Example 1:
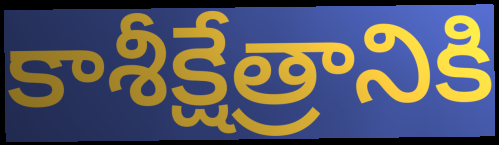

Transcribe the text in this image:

కాశీక్షేత్రానికి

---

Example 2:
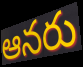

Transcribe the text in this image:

ఆనరు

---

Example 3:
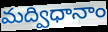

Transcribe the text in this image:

మద్విధానాం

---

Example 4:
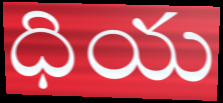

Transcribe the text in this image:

ధియ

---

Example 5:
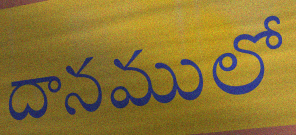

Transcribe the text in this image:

దానములో